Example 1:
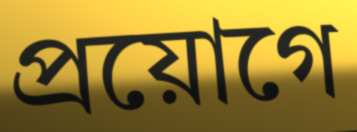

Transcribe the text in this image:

প্রয়োগে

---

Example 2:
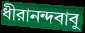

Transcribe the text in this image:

ধীরানন্দবাবু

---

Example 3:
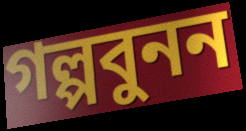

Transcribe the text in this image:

গল্পবুনন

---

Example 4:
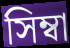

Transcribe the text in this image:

সিম্বা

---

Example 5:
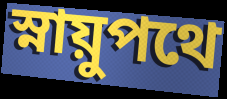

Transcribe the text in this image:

স্নায়ুপথে